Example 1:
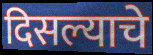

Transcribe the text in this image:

दिसल्याचे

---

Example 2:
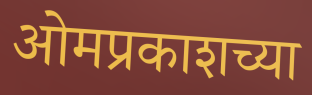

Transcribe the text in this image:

ओमप्रकाशच्या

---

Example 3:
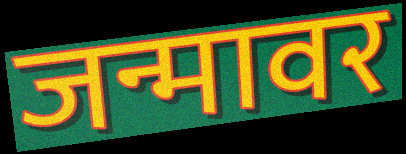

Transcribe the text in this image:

जन्मावर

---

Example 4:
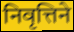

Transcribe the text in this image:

निवृत्तिने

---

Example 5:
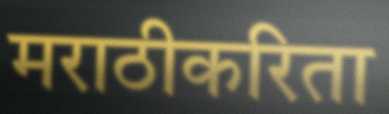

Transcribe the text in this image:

मराठीकरिता